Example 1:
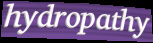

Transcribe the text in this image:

hydropathy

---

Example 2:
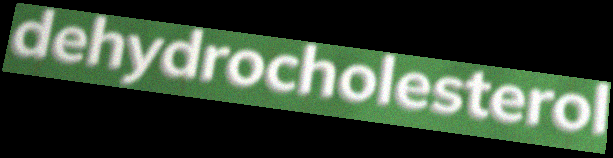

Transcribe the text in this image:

dehydrocholesterol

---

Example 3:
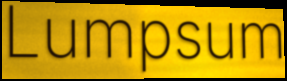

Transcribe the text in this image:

Lumpsum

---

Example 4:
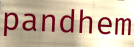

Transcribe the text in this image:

pandhem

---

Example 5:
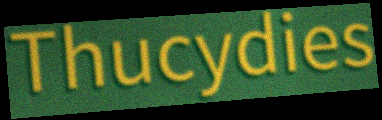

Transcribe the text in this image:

Thucydies